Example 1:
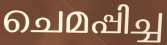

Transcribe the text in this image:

ചെമപ്പിച്ച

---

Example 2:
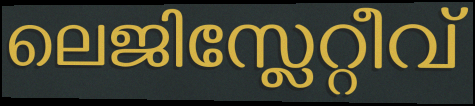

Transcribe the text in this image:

ലെജിസ്ലേറ്റീവ്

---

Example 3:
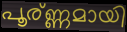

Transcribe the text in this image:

പൂര്ണ്ണമായി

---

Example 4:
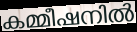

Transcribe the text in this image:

കമ്മീഷനിൽ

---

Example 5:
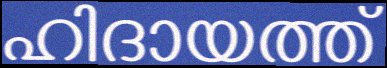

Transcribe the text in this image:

ഹിദായത്ത്